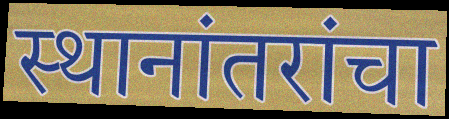
स्थानांतरांचा